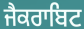
ਜੈਕਰਾਬਿਟ